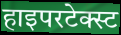
हाइपरटेक्स्ट